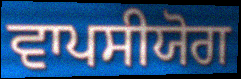
ਵਾਪਸੀਯੋਗ